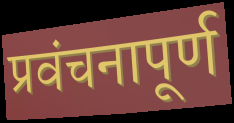
प्रवंचनापूर्ण